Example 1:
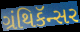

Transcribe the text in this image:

ગ્રંથિકૅન્સર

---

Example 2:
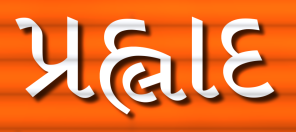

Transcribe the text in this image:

પ્રહ્લાદ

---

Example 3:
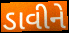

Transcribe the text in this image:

ડાવીને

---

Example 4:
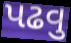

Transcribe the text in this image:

પઢવુ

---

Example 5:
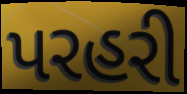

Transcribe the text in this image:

પરહરી